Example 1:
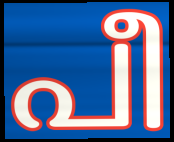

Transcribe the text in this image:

പീ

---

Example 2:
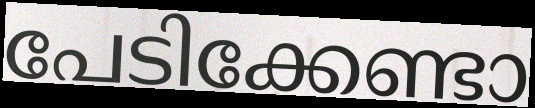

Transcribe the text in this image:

പേടിക്കേണ്ടാ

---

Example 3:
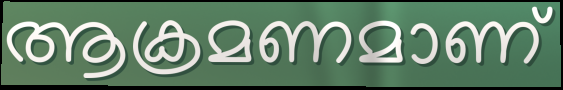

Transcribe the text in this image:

ആക്രമണമാണ്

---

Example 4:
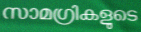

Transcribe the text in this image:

സാമഗ്രികളുടെ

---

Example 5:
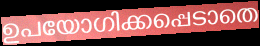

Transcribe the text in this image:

ഉപയോഗിക്കപ്പെടാതെ